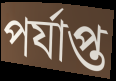
পর্যাপ্ত